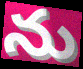
ను